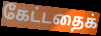
கேட்டதைக்